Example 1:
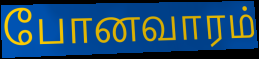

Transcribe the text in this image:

போனவாரம்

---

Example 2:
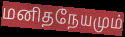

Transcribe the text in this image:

மனிதநேயமும்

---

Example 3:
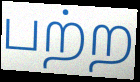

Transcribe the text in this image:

பற்ற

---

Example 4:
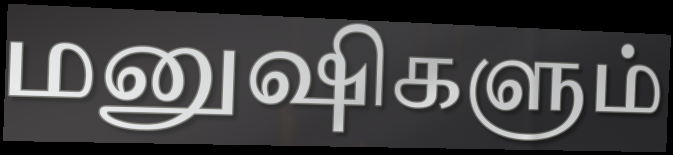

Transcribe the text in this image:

மனுஷிகளும்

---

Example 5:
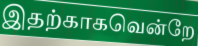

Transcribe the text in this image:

இதற்காகவென்றே